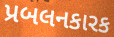
પ્રબલનકારક